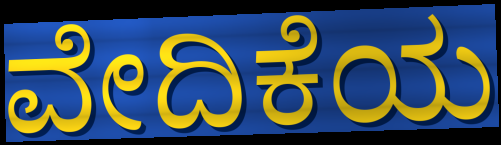
ವೇದಿಕೆಯ